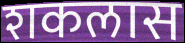
शकलास